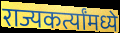
राज्यकर्त्यांमध्ये